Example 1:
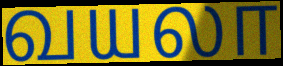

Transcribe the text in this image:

வயலா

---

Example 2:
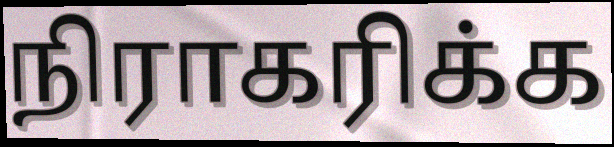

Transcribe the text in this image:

நிராகரிக்க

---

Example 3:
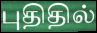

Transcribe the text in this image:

புதிதில்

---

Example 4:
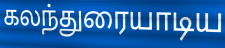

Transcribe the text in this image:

கலந்துரையாடிய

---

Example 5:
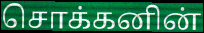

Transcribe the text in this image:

சொக்கனின்